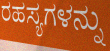
ರಹಸ್ಯಗಳನ್ನು